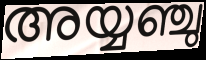
അയ്യഞ്ചു